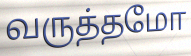
வருத்தமோ